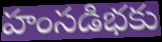
హంసడిభకు